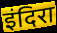
इंदिरा